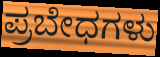
ಪ್ರಬೇಧಗಳು